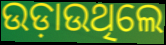
ଉଡ଼ାଉଥିଲେ